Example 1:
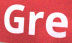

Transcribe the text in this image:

Gre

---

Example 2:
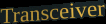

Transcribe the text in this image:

Transceiver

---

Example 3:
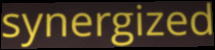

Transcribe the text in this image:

synergized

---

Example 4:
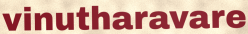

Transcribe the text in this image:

vinutharavare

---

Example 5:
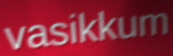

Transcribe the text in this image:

vasikkum